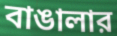
বাঙালার